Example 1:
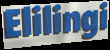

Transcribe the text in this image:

Elilingi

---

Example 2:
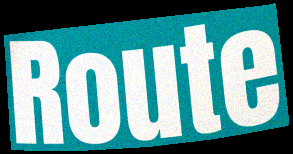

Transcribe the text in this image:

Route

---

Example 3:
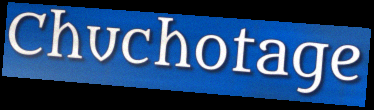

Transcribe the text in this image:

Chuchotage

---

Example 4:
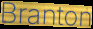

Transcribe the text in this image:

Branton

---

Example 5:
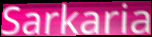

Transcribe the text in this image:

Sarkaria